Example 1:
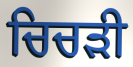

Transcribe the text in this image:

ਚਿਚੜੀ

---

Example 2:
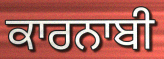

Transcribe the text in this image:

ਕਾਰਨਾਬੀ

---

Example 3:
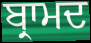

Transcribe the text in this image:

ਬ੍ਰਾਮਦ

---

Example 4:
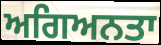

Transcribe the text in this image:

ਅਗਿਅਨਤਾ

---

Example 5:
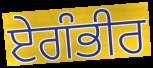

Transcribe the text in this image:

ਏਗੰਭੀਰ